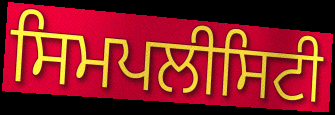
ਸਿਮਪਲੀਸਿਟੀ